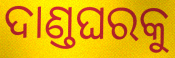
ଦାଣ୍ଡଘରକୁ